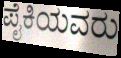
ಪೈಕಿಯವರು